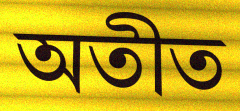
অতীত